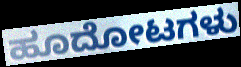
ಹೂದೋಟಗಳು